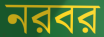
নরবর